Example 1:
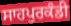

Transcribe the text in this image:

ਸਾਹਪੁਰਕੰਡੀ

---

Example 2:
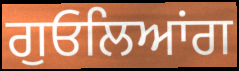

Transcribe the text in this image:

ਗੁਓਲਿਆਂਗ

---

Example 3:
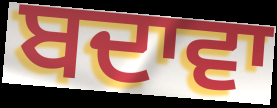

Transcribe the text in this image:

ਬਦਾਵਾ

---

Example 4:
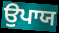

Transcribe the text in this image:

ਉਪਾਯ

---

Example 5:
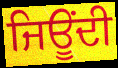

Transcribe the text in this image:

ਜਿਊਂਦੀ